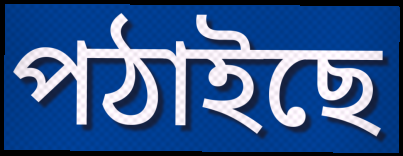
পঠাইছে